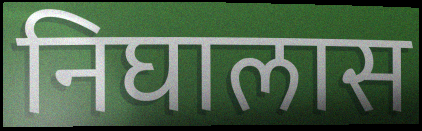
निघालास